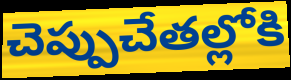
చెప్పుచేతల్లోకి